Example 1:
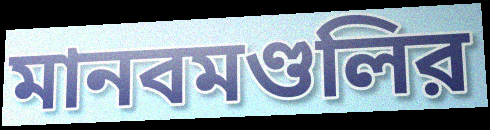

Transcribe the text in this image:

মানবমণ্ডলির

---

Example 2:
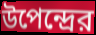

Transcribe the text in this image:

উপেন্দ্রের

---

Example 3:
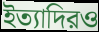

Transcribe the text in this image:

ইত্যাদিরও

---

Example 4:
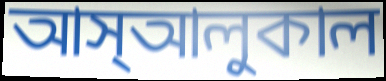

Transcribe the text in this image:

আস্আলুকাল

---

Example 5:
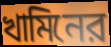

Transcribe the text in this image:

খামিনের